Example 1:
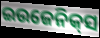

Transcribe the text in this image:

ଇଉଜେନିକ୍‌ସ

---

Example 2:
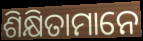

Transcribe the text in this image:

ଶିକ୍ଷିତାମାନେ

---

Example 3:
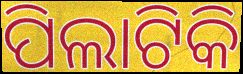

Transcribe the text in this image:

ପିଲାଟିକି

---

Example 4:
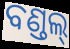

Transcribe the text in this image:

ବଣ୍ଡଲ୍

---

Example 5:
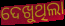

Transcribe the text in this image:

ଦେଖୁଥିଲା